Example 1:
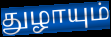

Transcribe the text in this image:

துழாயும்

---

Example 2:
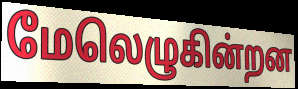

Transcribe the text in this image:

மேலெழுகின்றன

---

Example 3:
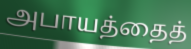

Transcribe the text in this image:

அபாயத்தைத்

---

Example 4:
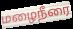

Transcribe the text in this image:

மழைநீரை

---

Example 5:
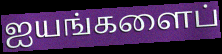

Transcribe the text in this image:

ஐயங்களைப்